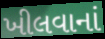
ખીલવાનાં